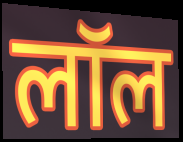
लॉल